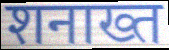
शनाख्त